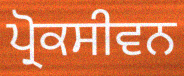
ਪ੍ਰੋਕਸੀਵਨ